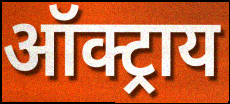
ऑक्ट्राय